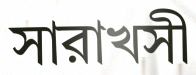
সারাখসী